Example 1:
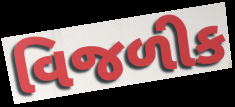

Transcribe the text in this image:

વિજળીક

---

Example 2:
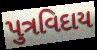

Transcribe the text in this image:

પુત્રવિદાય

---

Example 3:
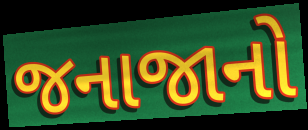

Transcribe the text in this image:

જનાજાનો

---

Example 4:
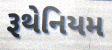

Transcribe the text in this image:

રૂથેનિયમ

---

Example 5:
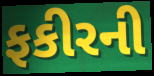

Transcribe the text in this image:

ફકીરની